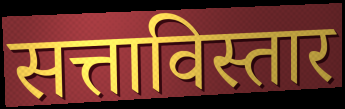
सत्ताविस्तार